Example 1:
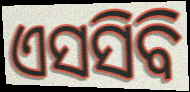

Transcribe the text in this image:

ଏସସିବି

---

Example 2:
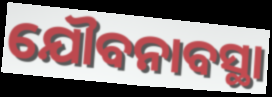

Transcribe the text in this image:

ଯୌବନାବସ୍ଥା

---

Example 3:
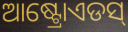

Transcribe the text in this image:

ଆଷ୍ଟ୍ରୋଏଡସ୍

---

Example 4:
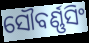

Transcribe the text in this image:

ସୌବର୍ଣ୍ଣସିଂ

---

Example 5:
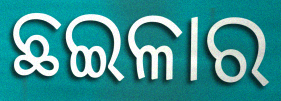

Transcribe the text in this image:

ଛଇଳାର